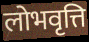
लोभवृत्ति